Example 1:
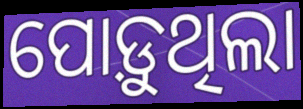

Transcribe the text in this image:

ପୋଡ଼ୁଥିଲା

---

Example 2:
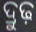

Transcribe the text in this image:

ଦ୍ରୁଢ଼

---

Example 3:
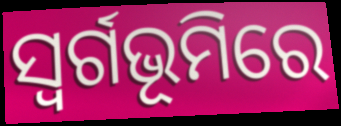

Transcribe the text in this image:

ସ୍ଵର୍ଗଭୂମିରେ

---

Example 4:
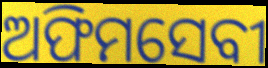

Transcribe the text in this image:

ଅଫିମସେବୀ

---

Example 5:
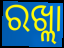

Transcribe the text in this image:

ରଖ୍ଲା